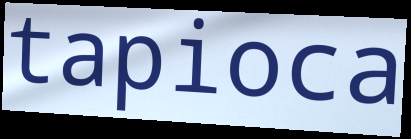
tapioca